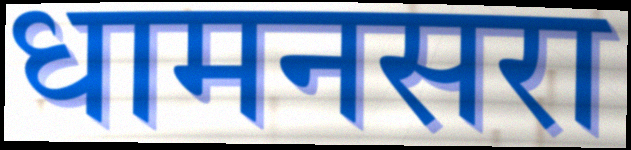
धामनसरा